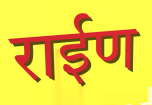
राईण